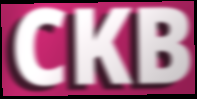
CKB